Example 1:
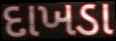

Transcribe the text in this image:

દાખડા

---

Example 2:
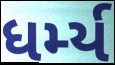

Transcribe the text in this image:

ધર્મ્ય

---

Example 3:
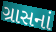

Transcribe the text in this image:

ગ્રાસનાં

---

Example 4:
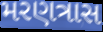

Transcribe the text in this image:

મરણત્રાસ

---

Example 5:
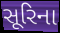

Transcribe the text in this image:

સૂરિના